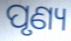
ପୃଣ୍ୟ